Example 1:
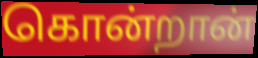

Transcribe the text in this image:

கொன்றான்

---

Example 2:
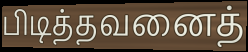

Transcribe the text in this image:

பிடித்தவனைத்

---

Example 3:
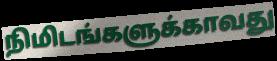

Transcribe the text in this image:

நிமிடங்களுக்காவது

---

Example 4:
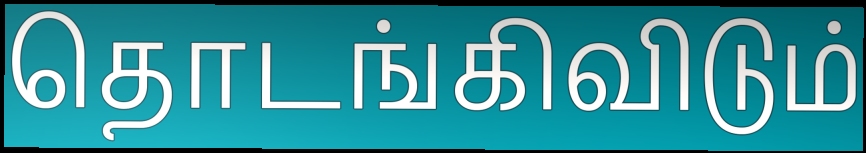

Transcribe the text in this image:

தொடங்கிவிடும்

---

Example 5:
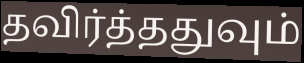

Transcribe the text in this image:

தவிர்த்ததுவும்